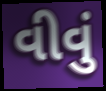
વીવું